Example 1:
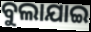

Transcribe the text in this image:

ବୁଲାଯାଇ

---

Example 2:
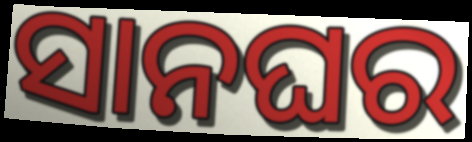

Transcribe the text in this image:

ସାନଘର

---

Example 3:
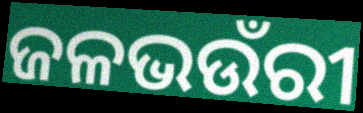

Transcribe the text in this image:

ଜଳଭଉଁରୀ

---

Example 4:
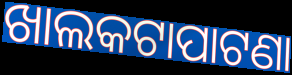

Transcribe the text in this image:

ଖାଲକଟାପାଟଣା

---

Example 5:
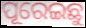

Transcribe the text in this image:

ପୂରେଇଛୁ